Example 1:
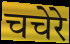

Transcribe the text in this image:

चचेरे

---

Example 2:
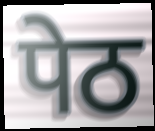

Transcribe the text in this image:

पेठ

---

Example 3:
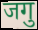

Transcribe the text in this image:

जगु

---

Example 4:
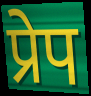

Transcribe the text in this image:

प्रेप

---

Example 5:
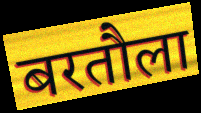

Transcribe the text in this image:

बरतौला